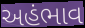
અહંભાવ